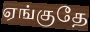
ஏங்குதே